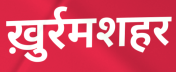
ख़ुर्रमशहर